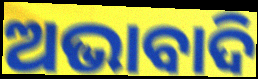
ଅଭାବାଦି